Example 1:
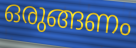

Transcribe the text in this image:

ഒരുങ്ങണം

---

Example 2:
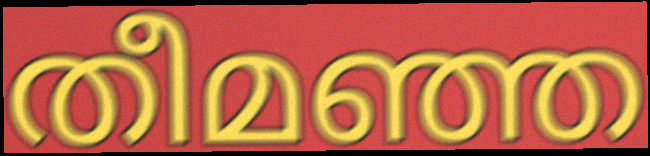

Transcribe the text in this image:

തീമഞ്ഞ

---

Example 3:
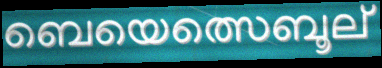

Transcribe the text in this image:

ബെയെത്സെബൂല്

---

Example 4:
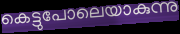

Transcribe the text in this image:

കെട്ടുപോലെയാകുന്നു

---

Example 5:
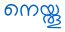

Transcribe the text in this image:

നെയ്തൂ